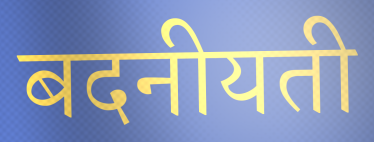
बदनीयती